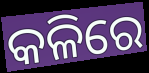
କଳିରେ